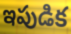
ఇపుడిక